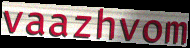
vaazhvom